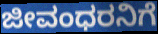
ಜೀವಂಧರನಿಗೆ